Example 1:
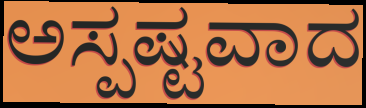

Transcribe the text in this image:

ಅಸ್ಪಷ್ಟವಾದ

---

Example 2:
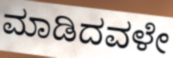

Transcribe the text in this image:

ಮಾಡಿದವಳೇ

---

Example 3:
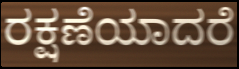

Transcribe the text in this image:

ರಕ್ಷಣೆಯಾದರೆ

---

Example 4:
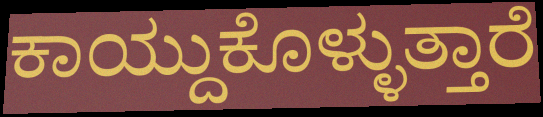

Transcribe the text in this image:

ಕಾಯ್ದುಕೊಳ್ಳುತ್ತಾರೆ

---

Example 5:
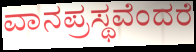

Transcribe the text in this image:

ವಾನಪ್ರಸ್ಥವೆಂದರೆ